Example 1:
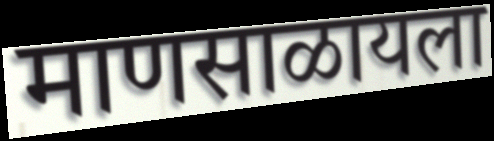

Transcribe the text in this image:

माणसाळायला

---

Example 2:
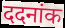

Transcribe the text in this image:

ददनांक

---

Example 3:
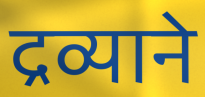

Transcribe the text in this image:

द्रव्याने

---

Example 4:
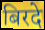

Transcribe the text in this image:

बिरदे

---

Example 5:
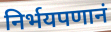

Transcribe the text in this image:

निर्भयपणानं